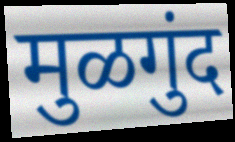
मुळगुंद